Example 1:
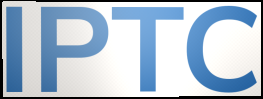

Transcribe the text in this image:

IPTC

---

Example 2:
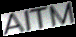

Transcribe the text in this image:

AITM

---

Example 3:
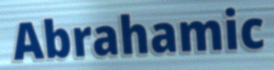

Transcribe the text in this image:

Abrahamic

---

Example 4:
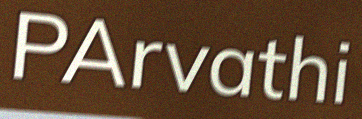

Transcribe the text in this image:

PArvathi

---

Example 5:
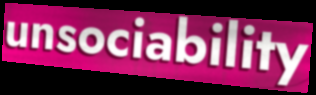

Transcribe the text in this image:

unsociability